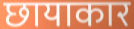
छायाकार